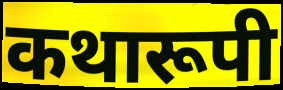
कथारूपी